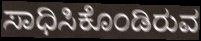
ಸಾಧಿಸಿಕೊಂಡಿರುವ